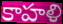
కాహళి